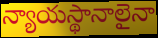
న్యాయస్థానాలైనా